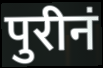
पुरीनं